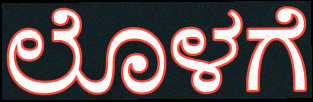
ಲೊಳಗೆ